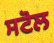
ਸਟੋਲ